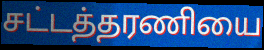
சட்டத்தரணியை